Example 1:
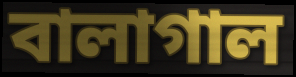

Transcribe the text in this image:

বালাগাল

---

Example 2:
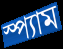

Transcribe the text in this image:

স্প্যাম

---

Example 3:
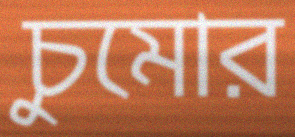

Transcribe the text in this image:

চুমোর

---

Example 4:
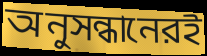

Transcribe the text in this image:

অনুসন্ধানেরই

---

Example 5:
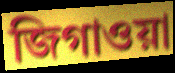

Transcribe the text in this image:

জিগাওয়া